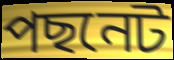
পছনেট